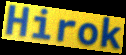
Hirok